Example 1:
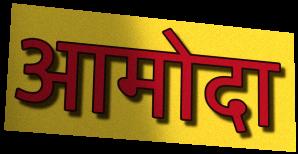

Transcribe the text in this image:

आमोदा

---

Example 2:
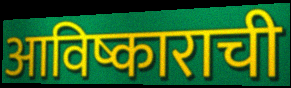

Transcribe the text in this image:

आविष्काराची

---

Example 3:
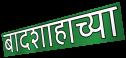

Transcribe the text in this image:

बादशाहाच्या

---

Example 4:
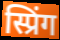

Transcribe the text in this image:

स्प्रिंग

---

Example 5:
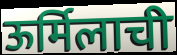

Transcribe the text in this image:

ऊर्मिलाची